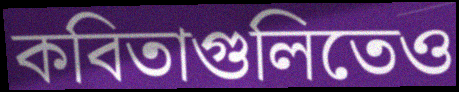
কবিতাগুলিতেও